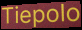
Tiepolo